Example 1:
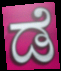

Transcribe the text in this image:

ಡೆ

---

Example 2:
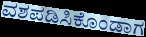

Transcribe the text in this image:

ವಶಪಡಿಸಿಕೊಂಡಾಗ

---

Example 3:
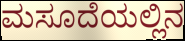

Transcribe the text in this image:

ಮಸೂದೆಯಲ್ಲಿನ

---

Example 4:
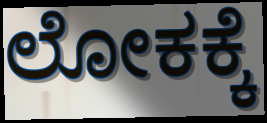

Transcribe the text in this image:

ಲೋಕಕ್ಕೆ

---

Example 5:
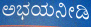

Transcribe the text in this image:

ಅಭಯನೀಡಿ